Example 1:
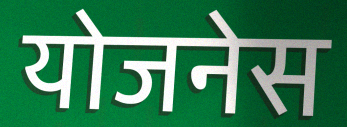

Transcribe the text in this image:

योजनेस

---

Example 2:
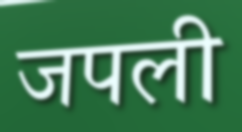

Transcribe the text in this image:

जपली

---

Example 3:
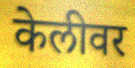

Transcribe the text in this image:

केलीवर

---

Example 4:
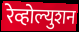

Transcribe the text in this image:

रेव्होल्युशन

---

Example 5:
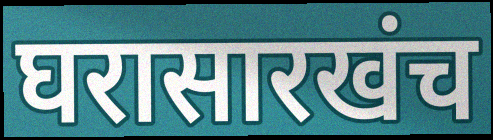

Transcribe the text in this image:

घरासारखंच